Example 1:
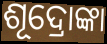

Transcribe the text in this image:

ଶୂଦ୍ରୋଙ୍କା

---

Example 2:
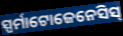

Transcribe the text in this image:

ସ୍ପର୍ମାଟୋଜେନେସିସ୍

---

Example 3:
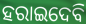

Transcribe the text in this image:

ହରାଇଦେବି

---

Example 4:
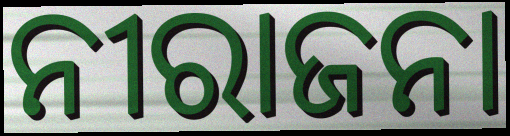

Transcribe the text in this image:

ନୀରାଜନା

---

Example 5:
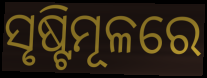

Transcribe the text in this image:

ସୃଷ୍ଟିମୂଳରେ